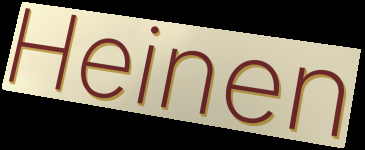
Heinen